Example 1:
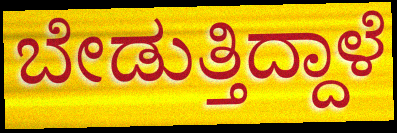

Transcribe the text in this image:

ಬೇಡುತ್ತಿದ್ದಾಳೆ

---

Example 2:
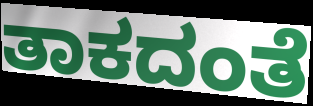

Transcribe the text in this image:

ತಾಕದಂತೆ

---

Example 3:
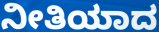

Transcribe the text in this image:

ನೀತಿಯಾದ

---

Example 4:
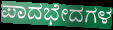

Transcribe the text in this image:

ಪಾದಭೇದಗಳ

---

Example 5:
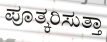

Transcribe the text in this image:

ಪೂತ್ಕರಿಸುತ್ತಾ